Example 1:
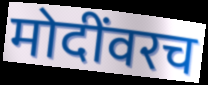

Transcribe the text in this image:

मोदींवरच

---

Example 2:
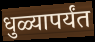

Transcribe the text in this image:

धुळ्यापर्यंत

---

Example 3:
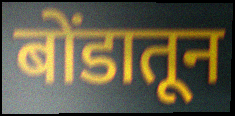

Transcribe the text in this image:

बोंडातून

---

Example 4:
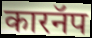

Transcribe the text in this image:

कारनॅप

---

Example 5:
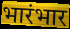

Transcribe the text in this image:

भारंभार